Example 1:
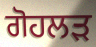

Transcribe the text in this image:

ਗੋਹਲੜ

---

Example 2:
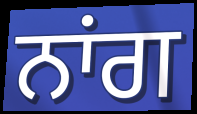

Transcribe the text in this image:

ਨਾਂਗ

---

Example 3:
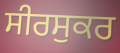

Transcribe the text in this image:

ਸੀਰਸੁਕਰ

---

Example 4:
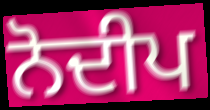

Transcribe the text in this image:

ਨੋਦੀਪ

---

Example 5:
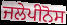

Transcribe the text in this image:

ਜਲੇਪੀਨੋਸ